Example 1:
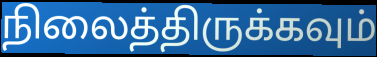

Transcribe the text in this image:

நிலைத்திருக்கவும்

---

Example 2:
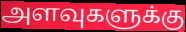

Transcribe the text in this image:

அளவுகளுக்கு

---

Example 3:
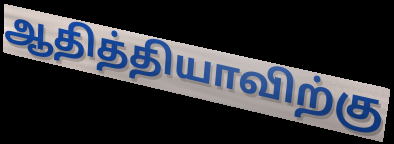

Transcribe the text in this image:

ஆதித்தியாவிற்கு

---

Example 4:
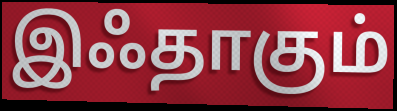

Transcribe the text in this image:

இஃதாகும்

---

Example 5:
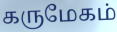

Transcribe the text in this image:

கருமேகம்